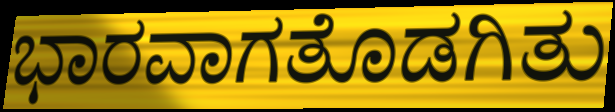
ಭಾರವಾಗತೊಡಗಿತು